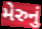
મેરુનું